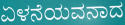
ಏಳನೆಯವನಾದ